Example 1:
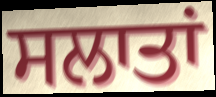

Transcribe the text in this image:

ਸਲਾਤਾਂ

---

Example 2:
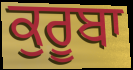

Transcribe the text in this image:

ਕੁਰੂਬਾ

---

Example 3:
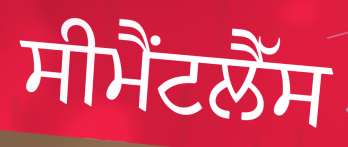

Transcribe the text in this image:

ਸੀਮੈਂਟਲੈੱਸ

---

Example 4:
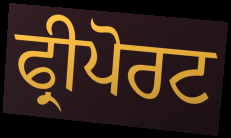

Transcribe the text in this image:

ਫ੍ਰੀਪੋਰਟ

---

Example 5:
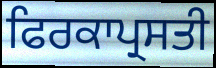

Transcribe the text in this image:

ਫਿਰਕਾਪ੍ਰਸਤੀ